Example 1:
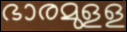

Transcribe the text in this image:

ഭാരമുളള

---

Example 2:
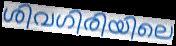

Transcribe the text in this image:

ശിവഗിരിയിലെ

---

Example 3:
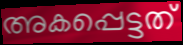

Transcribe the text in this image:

അകപ്പെട്ടത്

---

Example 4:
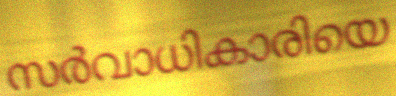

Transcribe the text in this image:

സർവാധികാരിയെ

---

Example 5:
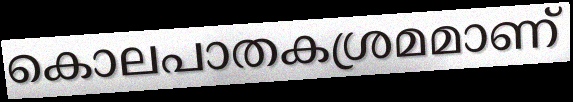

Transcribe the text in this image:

കൊലപാതകശ്രമമാണ്